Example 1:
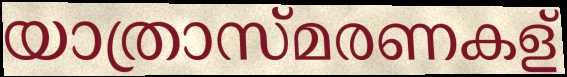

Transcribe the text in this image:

യാത്രാസ്മരണകള്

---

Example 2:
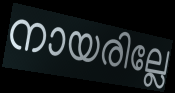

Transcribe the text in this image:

നായരില്ലേ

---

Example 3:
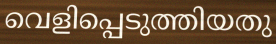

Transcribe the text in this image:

വെളിപ്പെടുത്തിയതു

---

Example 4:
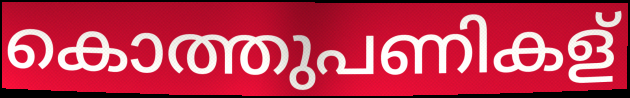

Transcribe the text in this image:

കൊത്തുപണികള്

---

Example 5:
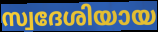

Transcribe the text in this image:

സ്വദേശിയായ